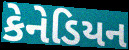
કેનેડિયન